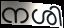
നശി